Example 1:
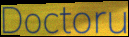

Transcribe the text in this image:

Doctoru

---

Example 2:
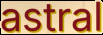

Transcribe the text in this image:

astral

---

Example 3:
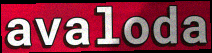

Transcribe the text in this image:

avaloda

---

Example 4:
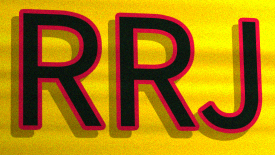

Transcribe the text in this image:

RRJ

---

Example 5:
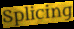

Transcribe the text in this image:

Splicing